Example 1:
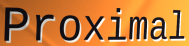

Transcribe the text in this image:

Proximal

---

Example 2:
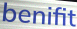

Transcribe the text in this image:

benifit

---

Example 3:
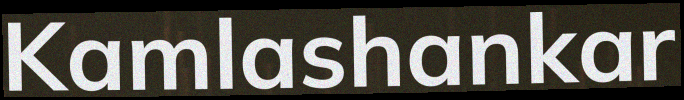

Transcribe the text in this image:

Kamlashankar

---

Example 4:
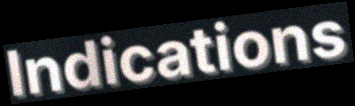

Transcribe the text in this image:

Indications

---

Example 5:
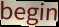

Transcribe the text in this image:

begin